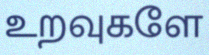
உறவுகளே